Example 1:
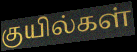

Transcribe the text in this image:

குயில்கள்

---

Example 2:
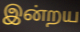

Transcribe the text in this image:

இன்றய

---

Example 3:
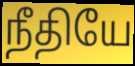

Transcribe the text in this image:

நீதியே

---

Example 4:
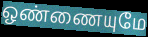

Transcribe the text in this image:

ஒண்ணையுமே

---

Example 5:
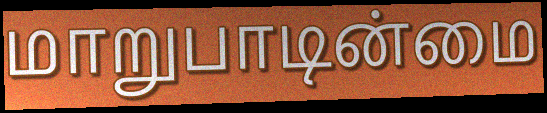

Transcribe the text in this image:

மாறுபாடின்மை